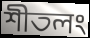
শীতলং